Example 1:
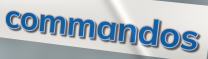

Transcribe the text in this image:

commandos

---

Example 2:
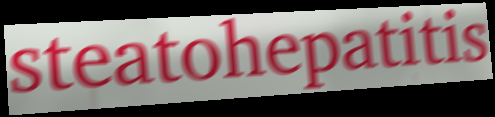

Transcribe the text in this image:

steatohepatitis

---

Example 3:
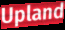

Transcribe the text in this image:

Upland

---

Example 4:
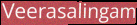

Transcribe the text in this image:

Veerasalingam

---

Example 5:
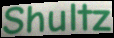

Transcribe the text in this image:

Shultz